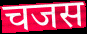
चजस